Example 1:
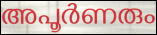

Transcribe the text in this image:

അപൂർണരും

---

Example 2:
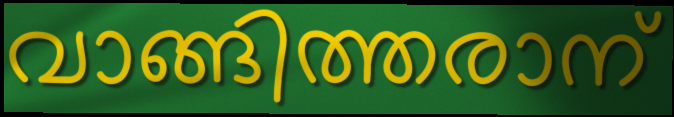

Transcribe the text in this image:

വാങ്ങിത്തരാന്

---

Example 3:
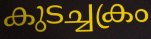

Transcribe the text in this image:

കുടച്ചക്രം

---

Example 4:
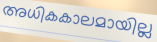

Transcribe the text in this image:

അധികകാലമായില്ല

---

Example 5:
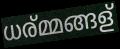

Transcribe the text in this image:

ധര്മ്മങ്ങള്